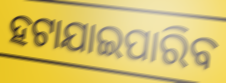
ହଟାଯାଇପାରିବ